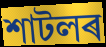
শাটলৰ